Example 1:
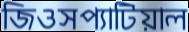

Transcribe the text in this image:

জিওসপ্যাটিয়াল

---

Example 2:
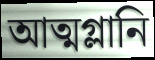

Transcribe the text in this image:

আত্মগ্লানি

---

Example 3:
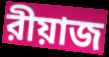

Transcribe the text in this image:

রীয়াজ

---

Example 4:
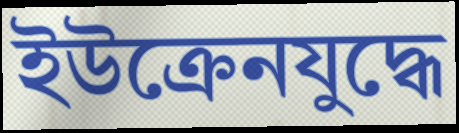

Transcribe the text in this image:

ইউক্রেনযুদ্ধে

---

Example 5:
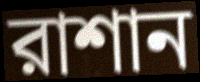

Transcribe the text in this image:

রাশান